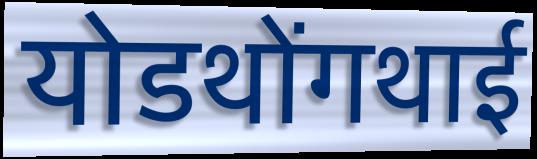
योडथोंगथाई